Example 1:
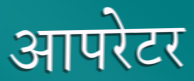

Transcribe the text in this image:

आपरेटर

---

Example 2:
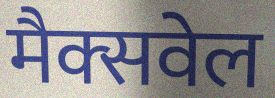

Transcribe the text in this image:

मैक्‍सवेल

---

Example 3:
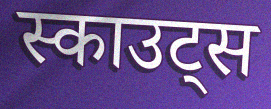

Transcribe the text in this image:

स्काउट्स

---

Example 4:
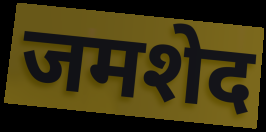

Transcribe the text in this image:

जमशेद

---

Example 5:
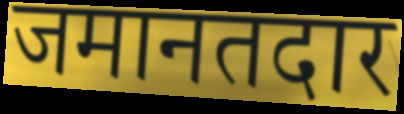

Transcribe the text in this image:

जमानतदार